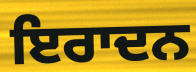
ਇਰਾਦਨ